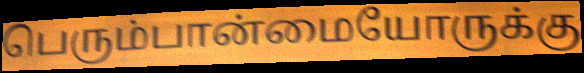
பெரும்பான்மையோருக்கு